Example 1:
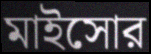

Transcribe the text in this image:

মাইসোর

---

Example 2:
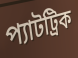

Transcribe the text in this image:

প্যাটট্রিক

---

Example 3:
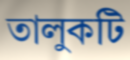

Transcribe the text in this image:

তালুকটি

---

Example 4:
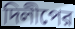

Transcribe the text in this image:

দিলীপের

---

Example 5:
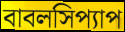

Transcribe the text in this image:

বাবলসিপ্যাপ